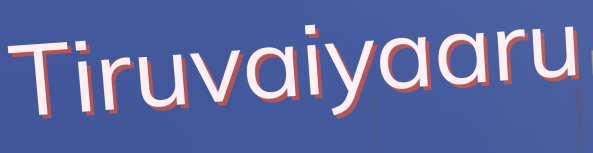
Tiruvaiyaaru